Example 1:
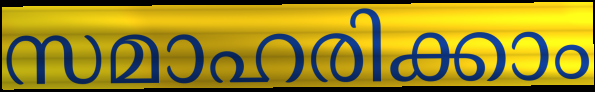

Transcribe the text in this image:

സമാഹരിക്കാം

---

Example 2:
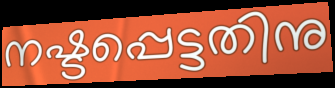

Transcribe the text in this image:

നഷ്ടപ്പെട്ടതിനു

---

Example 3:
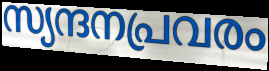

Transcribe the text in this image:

സ്യന്ദനപ്രവരം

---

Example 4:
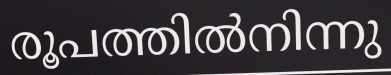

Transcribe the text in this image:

രൂപത്തിൽനിന്നു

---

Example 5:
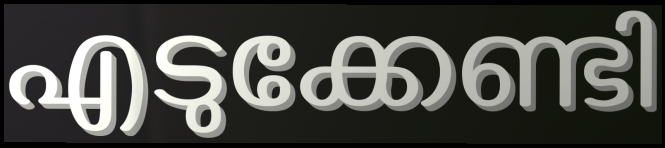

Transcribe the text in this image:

എടുക്കേണ്ടി